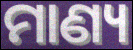
ମାଣ୍ୟ